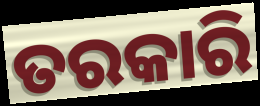
ତରକାରି